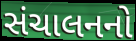
સંચાલનનો